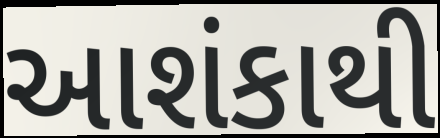
આશંકાથી